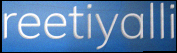
reetiyalli